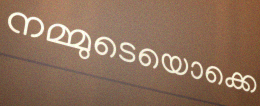
നമ്മുടെയൊക്കെ